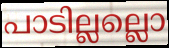
പാടില്ലല്ലൊ